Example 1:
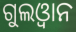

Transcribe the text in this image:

ଗୁଲଓ୍ୱାନ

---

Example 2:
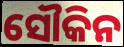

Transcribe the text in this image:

ସୌକିନ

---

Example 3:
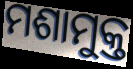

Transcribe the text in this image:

ମଶାମୁକ୍ତ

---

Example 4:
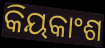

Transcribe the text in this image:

କିୟକାଂଶ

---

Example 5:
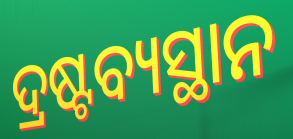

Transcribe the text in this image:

ଦ୍ରଷ୍ଟବ୍ୟସ୍ଥାନ